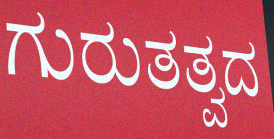
ಗುರುತತ್ವದ